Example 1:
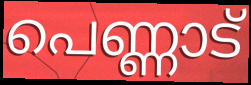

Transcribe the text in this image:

പെണ്ണാട്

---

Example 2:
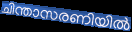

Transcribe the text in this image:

ചിന്താസരണിയിൽ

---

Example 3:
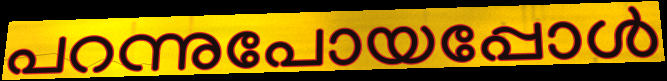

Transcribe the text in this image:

പറന്നുപോയപ്പോൾ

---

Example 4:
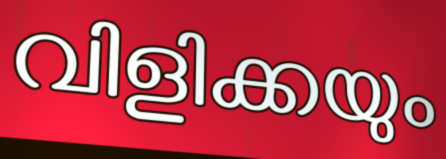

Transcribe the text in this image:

വിളിക്കയും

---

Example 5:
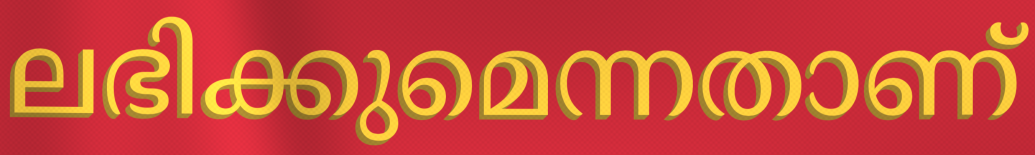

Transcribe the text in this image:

ലഭിക്കുമെന്നതാണ്